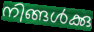
നിങ്ങൾക്കു